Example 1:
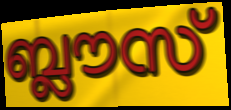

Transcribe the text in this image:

ബ്ലൗസ്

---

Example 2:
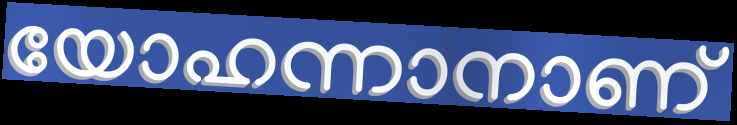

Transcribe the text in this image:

യോഹന്നാനാണ്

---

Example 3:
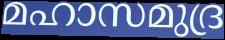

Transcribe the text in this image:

മഹാസമുദ്ര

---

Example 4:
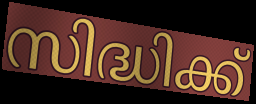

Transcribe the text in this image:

സിദ്ധിക്ക്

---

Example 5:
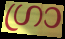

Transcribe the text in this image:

ഗ്രാ